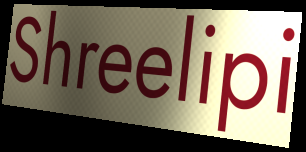
Shreelipi